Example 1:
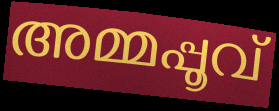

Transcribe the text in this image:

അമ്മപ്പൂവ്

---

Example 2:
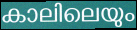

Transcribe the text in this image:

കാലിലെയും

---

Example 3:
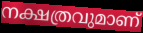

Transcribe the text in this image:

നക്ഷത്രവുമാണ്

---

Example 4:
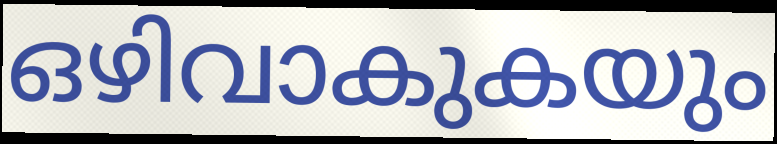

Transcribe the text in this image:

ഒഴിവാകുകയും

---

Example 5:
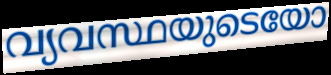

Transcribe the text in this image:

വ്യവസ്ഥയുടെയോ